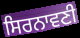
ਸਿਰਨਾਵਣੀ